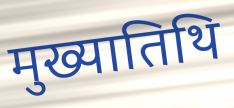
मुख्यातिथि